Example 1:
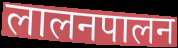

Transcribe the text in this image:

लालनपालन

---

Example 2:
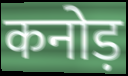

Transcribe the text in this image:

कनोड़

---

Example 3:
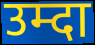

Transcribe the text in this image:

उम्दा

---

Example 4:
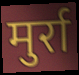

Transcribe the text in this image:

मुर्रा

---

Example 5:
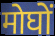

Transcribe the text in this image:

मोघों